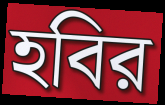
হবির